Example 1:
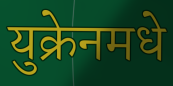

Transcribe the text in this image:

युक्रेनमधे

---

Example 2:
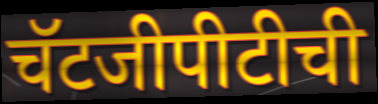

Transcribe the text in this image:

चॅटजीपीटीची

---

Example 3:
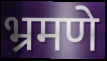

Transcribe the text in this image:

भ्रमणे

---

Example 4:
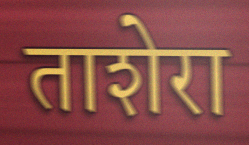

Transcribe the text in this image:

ताशेरा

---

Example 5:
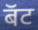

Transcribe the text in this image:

बॅट